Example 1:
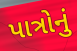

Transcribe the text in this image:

પાત્રોનું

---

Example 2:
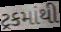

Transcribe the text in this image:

ટ્રકમાંથી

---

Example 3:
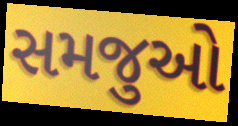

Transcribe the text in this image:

સમજુઓ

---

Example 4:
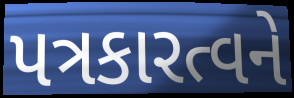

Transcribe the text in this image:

પત્રકારત્વને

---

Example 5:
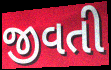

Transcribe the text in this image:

જીવતી